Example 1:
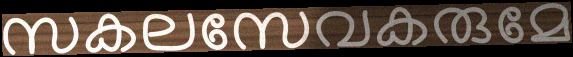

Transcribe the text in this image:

സകലസേവകരുമേ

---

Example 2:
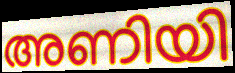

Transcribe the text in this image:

അണിയി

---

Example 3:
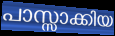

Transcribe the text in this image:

പാസ്സാക്കിയ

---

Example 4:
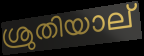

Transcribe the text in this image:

ശ്രുതിയാല്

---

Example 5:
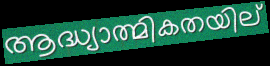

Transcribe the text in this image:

ആദ്ധ്യാത്മികതയില്